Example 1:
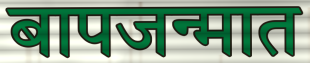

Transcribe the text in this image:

बापजन्मात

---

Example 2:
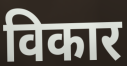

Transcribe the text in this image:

विकार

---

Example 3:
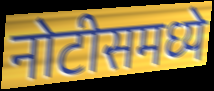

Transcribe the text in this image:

नोटीसमध्ये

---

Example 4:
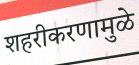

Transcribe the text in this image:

शहरीकरणामुळे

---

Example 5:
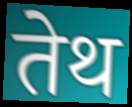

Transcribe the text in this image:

तेथ